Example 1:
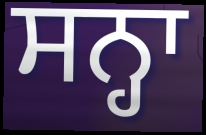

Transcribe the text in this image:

ਸਨ੍ਹਾ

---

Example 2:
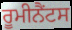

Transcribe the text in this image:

ਰੂਮੀਨੈਂਟਸ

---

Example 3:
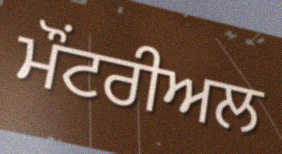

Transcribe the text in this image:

ਮੌਂਟਰੀਅਲ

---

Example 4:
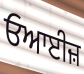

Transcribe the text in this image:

ਓਆਈਜ਼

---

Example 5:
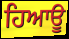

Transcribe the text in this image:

ਹਿਆਊ